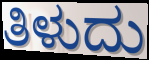
ತಿಳುದು